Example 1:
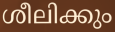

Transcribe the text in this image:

ശീലിക്കും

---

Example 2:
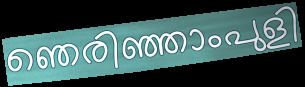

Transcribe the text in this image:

ഞെരിഞ്ഞാംപുളി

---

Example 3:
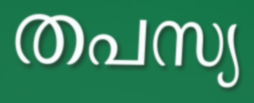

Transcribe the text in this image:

തപസ്യ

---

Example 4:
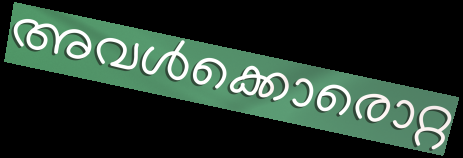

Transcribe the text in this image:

അവൾക്കൊരൊറ്റ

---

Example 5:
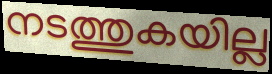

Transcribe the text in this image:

നടത്തുകയില്ല